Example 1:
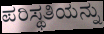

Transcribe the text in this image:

ಪರಿಸ್ಥತಿಯನ್ನು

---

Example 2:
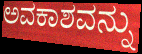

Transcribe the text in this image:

ಅವಕಾಶವನ್ನು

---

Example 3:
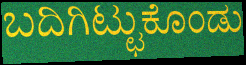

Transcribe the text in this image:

ಬದಿಗಿಟ್ಟುಕೊಂಡು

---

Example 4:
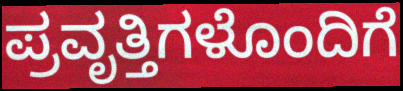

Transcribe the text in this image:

ಪ್ರವೃತ್ತಿಗಳೊಂದಿಗೆ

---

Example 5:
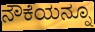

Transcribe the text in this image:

ನೌಕೆಯನ್ನೂ